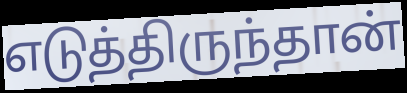
எடுத்திருந்தான்